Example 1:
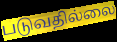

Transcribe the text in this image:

படுவதில்லை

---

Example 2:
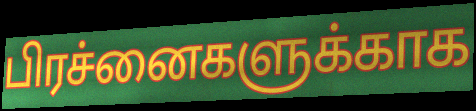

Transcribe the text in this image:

பிரச்னைகளுக்காக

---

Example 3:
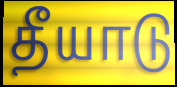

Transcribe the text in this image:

தீயாடு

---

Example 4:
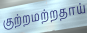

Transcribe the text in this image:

குற்றமற்றதாய்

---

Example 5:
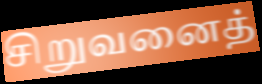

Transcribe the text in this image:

சிறுவனைத்